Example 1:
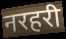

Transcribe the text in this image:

नरहरी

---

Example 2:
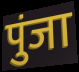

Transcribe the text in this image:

पुंजा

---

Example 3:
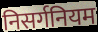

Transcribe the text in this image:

निसर्गनियम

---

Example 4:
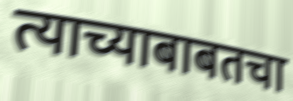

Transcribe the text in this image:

त्याच्याबाबतचा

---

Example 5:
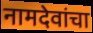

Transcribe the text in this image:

नामदेवांचा